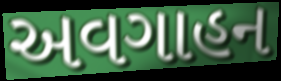
અવગાહન